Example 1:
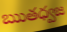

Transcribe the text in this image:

ఋతధ్వజ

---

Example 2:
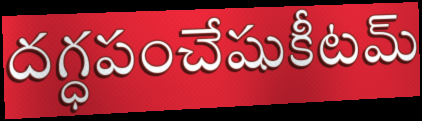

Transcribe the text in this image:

దగ్ధపంచేషుకీటమ్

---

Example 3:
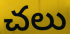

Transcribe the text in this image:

చలు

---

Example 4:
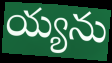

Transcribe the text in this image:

య్యను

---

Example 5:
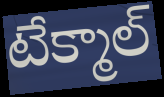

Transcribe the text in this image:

టేక్మాల్